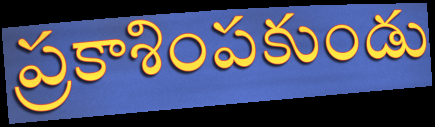
ప్రకాశింపకుండు